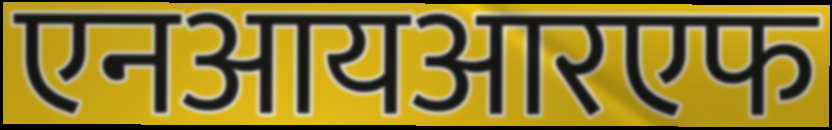
एनआयआरएफ